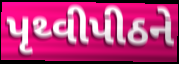
પૃથ્વીપીઠને